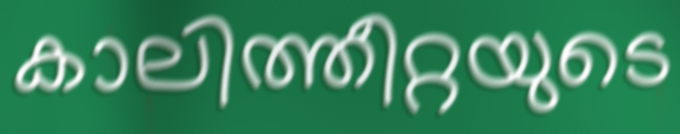
കാലിത്തീറ്റയുടെ